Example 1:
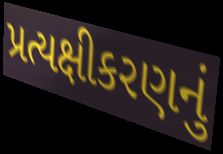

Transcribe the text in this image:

પ્રત્યક્ષીકરણનું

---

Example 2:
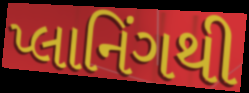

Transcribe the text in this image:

પ્લાનિંગથી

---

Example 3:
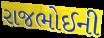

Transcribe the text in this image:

રાજભોઈની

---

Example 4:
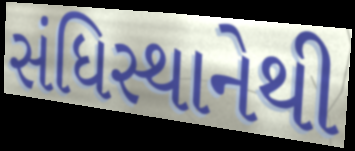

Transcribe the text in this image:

સંધિસ્થાનેથી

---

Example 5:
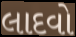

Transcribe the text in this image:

લાદવો